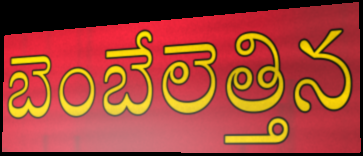
బెంబేలెత్తిన